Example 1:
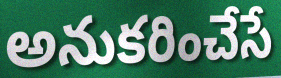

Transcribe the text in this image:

అనుకరించేసే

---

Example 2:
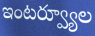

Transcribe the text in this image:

ఇంటర్వ్యూల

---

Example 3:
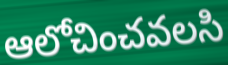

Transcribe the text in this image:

ఆలోచించవలసి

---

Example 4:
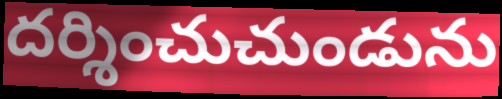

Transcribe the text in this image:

దర్శించుచుండును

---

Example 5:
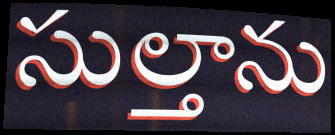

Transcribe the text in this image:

సుల్తాను